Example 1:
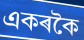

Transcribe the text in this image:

একৰকৈ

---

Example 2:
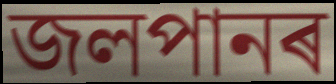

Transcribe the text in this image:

জলপানৰ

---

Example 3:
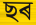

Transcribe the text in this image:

ছৰ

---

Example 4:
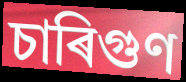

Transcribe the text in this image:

চাৰিগুণ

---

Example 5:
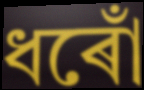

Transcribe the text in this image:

ধৰোঁ